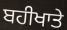
ਬਹੀਖਾਤੇ